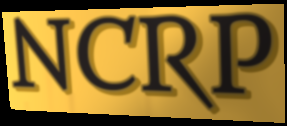
NCRP